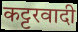
कट्टरवादी